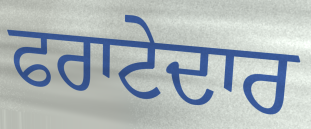
ਫਰਾਟੇਦਾਰ